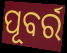
ପୂବର୍ର